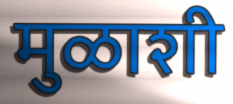
मुळाशी